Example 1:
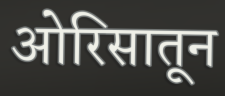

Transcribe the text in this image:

ओरिसातून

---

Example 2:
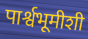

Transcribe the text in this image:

पार्श्वभूमीशी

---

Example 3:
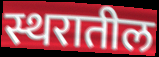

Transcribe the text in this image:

स्थरातील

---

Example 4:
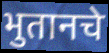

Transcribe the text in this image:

भुतानचे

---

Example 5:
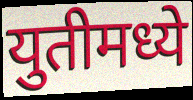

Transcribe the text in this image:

युतीमध्ये